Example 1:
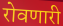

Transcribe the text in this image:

रोवणारी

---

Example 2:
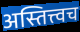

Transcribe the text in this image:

अस्तित्त्वच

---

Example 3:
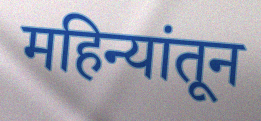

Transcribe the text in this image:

महिन्यांतून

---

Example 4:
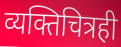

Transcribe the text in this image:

व्यक्तिचित्रही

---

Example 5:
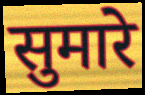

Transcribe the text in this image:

सुमारे